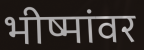
भीष्मांवर